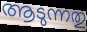
ആടുന്നതു